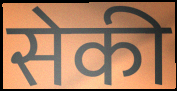
सेकी